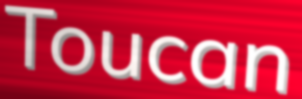
Toucan